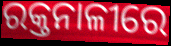
ରକ୍ତନାଳୀରେ